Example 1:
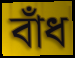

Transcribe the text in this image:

বাঁধ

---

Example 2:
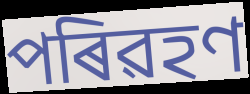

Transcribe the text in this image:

পৰিৱহণ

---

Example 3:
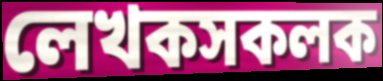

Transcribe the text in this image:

লেখকসকলক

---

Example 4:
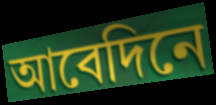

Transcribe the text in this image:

আবেদিনে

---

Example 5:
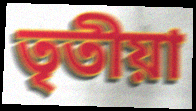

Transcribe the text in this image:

তৃতীয়া